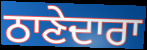
ਠਾਣੇਦਾਰਾ